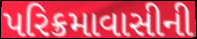
પરિક્રમાવાસીની